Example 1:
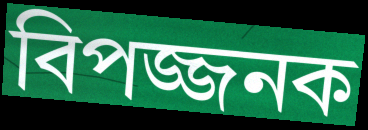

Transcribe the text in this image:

বিপজ্জনক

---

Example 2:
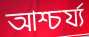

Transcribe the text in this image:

আশ্চৰ্য্য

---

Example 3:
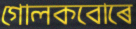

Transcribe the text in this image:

গোলকবোৰে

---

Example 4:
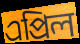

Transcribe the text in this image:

এপ্ৰিল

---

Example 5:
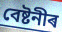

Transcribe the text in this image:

বেষ্টনীৰ